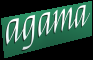
agama